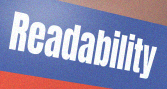
Readability